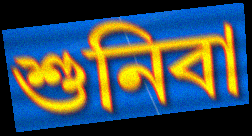
শুনিবা